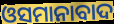
ଓସମାନାବାଦ